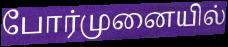
போர்முனையில்